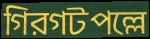
গিরগটপল্লে